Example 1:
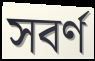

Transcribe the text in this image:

সবৰ্ণ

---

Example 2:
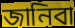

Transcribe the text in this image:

জানিবা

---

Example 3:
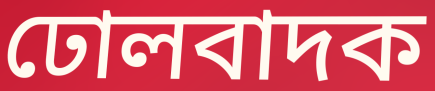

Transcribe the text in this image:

ঢোলবাদক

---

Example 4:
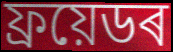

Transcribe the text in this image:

ফ্ৰয়েডৰ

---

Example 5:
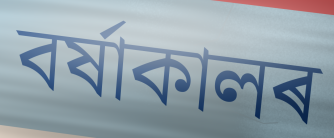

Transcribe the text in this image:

বৰ্ষাকালৰ